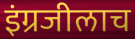
इंग्रजीलाच